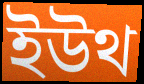
ইউথ